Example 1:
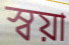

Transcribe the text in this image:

স্বয়া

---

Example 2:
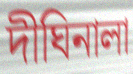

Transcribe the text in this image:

দীঘিনালা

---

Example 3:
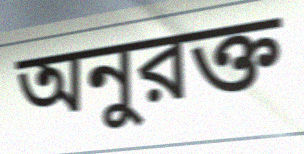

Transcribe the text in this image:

অনুরক্ত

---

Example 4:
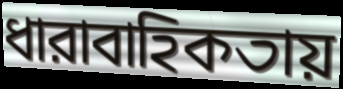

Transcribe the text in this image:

ধারাবাহিকতায়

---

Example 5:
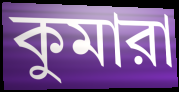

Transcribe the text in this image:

কুমারা